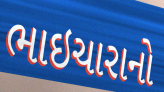
ભાઇચારાનો